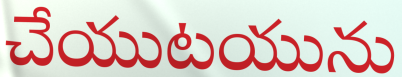
చేయుటయును